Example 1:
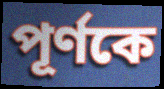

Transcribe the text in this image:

পূর্ণকে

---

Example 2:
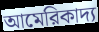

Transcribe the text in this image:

আমেরিকাদ্য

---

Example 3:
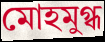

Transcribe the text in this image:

মোহমুগ্ধ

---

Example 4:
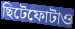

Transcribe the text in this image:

ছিটেফোটাও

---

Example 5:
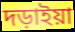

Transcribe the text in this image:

দড়াইয়া